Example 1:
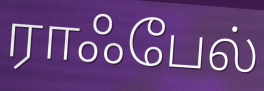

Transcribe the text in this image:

ராஃபேல்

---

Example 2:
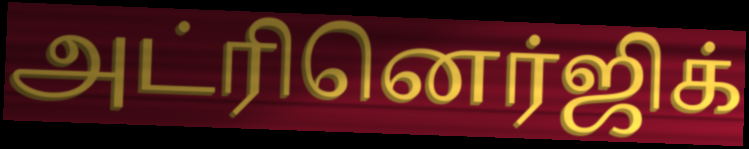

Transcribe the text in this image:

அட்ரினெர்ஜிக்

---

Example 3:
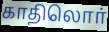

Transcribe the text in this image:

காதிலொர்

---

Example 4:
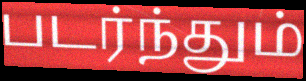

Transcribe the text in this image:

படர்ந்தும்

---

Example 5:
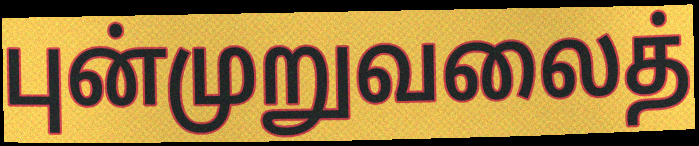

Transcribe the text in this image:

புன்முறுவலைத்